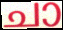
ചാ